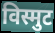
विस्मुट